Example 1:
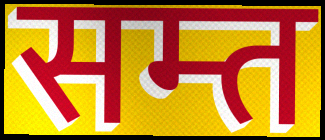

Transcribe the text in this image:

सम्त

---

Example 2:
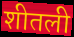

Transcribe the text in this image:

शीतली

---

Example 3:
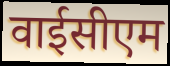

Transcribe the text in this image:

वाईसीएम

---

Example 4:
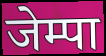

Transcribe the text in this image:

जेम्पा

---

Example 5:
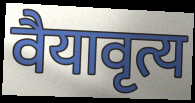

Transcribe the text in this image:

वैयावृत्य